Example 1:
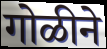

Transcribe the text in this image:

गोळीने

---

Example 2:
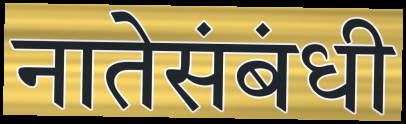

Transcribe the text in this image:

नातेसंबंधी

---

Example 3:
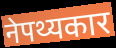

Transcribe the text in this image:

नेपथ्यकार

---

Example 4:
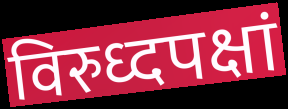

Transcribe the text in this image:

विरुध्दपक्षां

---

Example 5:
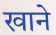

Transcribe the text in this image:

खाने